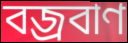
বজ্রবাণ